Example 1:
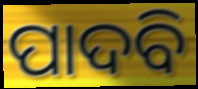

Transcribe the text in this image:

ପାଦବି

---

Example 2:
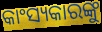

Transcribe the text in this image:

କାଂସ୍ୟକାରଙ୍କୁ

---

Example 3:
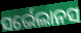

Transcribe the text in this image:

ସର୍ଭେଲାନସ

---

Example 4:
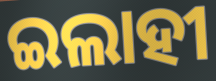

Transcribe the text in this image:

ଇଲାହୀ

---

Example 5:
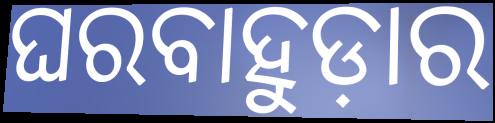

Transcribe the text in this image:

ଘରବାହୁଡ଼ାର